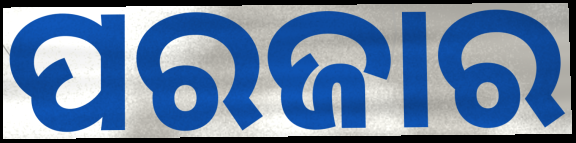
ପରଜାର